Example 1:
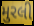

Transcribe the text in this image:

મુરલી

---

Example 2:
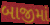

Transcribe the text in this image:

બાજીમાં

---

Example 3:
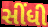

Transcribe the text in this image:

સીંધી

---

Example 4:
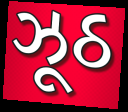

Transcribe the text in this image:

ઝૂઠ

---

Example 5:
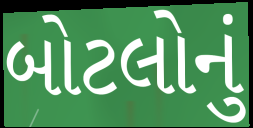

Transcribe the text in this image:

બોટલોનું